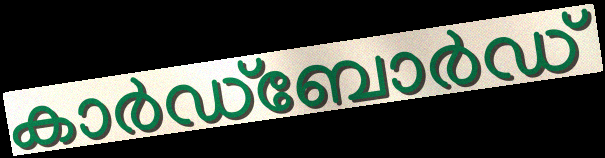
കാർഡ്ബോർഡ്